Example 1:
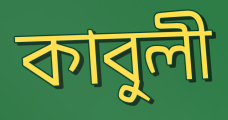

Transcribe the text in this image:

কাবুলী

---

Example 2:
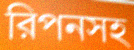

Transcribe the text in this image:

রিপনসহ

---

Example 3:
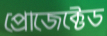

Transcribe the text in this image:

প্রোজেক্টেড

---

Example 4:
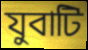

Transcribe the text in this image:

যুবাটি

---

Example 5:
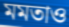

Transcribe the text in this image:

মমতাও